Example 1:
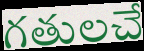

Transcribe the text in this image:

గతులచే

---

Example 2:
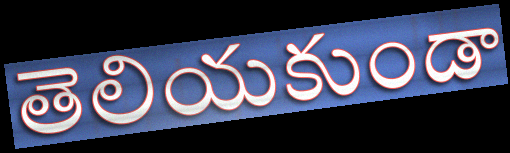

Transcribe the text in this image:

తెలియకుండా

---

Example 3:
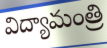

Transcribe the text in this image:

విద్యామంత్రి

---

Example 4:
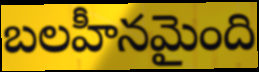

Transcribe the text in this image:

బలహీనమైంది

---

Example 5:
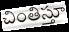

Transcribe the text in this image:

చింతిస్తూ